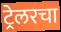
ट्रेलरचा